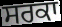
ਸਰਕਾ